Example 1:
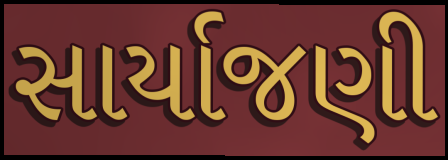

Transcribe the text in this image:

સાર્યાજણી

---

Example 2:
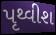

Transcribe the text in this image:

પૃથ્વીશ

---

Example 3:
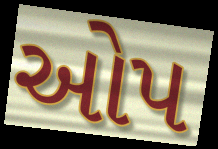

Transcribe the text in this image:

ઓપ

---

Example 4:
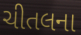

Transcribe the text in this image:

ચીતલના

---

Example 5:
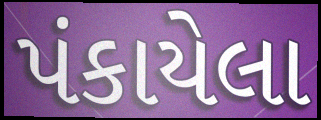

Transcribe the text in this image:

પંકાયેલા